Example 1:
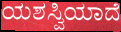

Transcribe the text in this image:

ಯಶಸ್ವಿಯಾದೆ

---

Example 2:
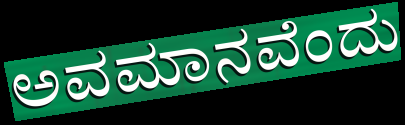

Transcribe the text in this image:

ಅವಮಾನವೆಂದು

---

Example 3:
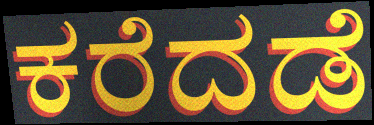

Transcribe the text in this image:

ಕರೆದಡೆ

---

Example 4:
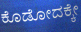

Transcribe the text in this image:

ಕೊಡೋದಕ್ಕೇ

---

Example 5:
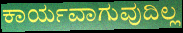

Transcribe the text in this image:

ಕಾರ್ಯವಾಗುವುದಿಲ್ಲ